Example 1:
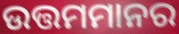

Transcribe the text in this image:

ଉତ୍ତମମାନର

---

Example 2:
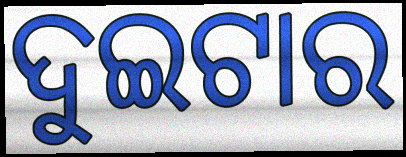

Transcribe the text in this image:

ଦୁଇଟାର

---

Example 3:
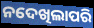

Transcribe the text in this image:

ନଦେଖିଲାପରି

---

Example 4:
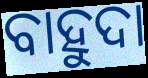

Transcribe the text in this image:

ବାହୁଦା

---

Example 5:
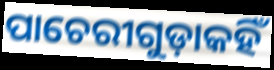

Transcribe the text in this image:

ପାଚେରୀଗୁଡ଼ାକହିଁ